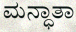
ಮನ್ಧಾತಾ